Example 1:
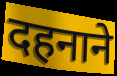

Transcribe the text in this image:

दहनाने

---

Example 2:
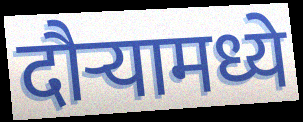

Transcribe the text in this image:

दौऱ्यामध्ये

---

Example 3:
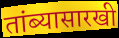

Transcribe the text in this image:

तांब्यासारखी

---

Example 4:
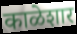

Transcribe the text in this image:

काळेशार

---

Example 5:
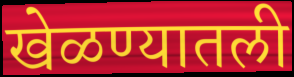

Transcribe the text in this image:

खेळण्यातली